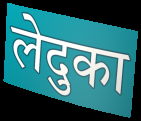
लेदुका